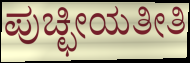
ಪುಚ್ಛೀಯತೀತಿ